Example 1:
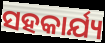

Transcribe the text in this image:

ସହକାର୍ଯ୍ୟ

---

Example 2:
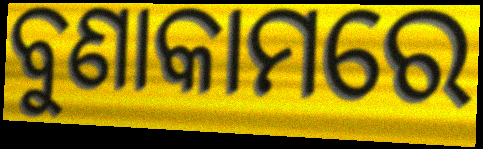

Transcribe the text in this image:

ବୁଣାକାମରେ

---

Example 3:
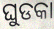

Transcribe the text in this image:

ଘୁଡକା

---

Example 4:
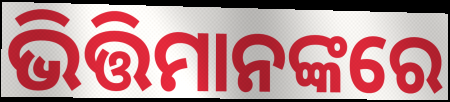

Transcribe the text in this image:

ଭିତ୍ତିମାନଙ୍କରେ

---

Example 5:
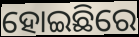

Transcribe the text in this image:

ହୋଇଛିରେ